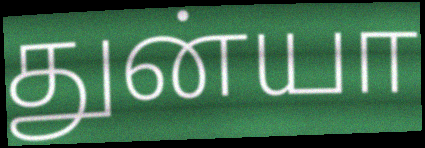
துன்யா